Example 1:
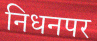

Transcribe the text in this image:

निधनपर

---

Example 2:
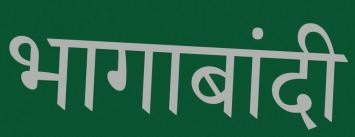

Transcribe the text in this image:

भागाबांदी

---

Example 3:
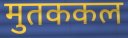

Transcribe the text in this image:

मुतककल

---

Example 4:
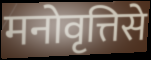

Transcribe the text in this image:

मनोवृत्तिसे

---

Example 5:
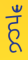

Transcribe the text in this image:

हूँं